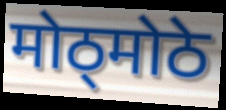
मोठ्मोठे